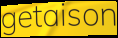
getaison